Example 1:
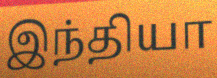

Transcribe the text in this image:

இந்தியா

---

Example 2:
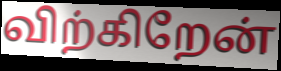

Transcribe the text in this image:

விற்கிறேன்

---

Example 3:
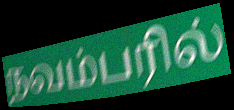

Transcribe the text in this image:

நவம்பரில்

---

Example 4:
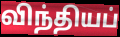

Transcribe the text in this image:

விந்தியப்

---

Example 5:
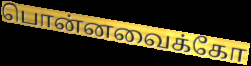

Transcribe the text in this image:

பொன்னவைக்கோ